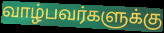
வாழ்பவர்களுக்கு